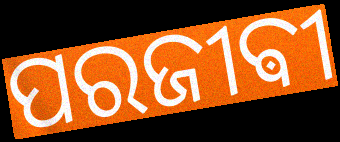
ପରଜୀଵୀ